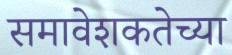
समावेशकतेच्या